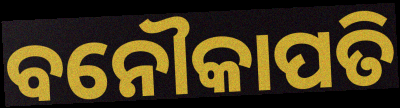
ବନୌକାପତି